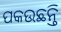
ପକଉଛନ୍ତି